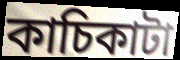
কাচিকাটা